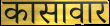
कासावार